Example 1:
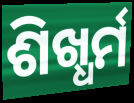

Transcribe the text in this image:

ଶିଖ୍ଧର୍ମ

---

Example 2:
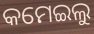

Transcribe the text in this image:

କମେଇଲୁ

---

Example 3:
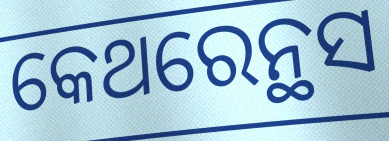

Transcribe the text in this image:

କେଥରେନ୍ଥସ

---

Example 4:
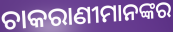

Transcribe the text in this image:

ଚାକରାଣୀମାନଙ୍କର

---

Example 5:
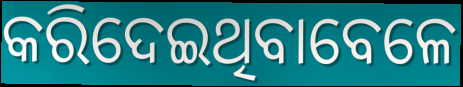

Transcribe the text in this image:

କରିଦେଇଥିବାବେଳେ